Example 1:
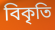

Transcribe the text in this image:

বিকৃতি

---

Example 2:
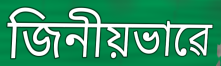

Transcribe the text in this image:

জিনীয়ভাৱে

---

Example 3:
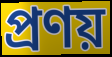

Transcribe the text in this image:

প্ৰণয়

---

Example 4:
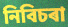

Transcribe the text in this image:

নিবিচৰা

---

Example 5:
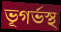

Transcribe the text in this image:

ভূগৰ্ভস্থ